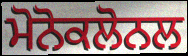
ਮੋਨੋਕਲੋਨਲ